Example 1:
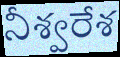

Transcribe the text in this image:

నీశ్వరేశ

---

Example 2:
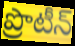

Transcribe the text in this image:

ప్రొటీన్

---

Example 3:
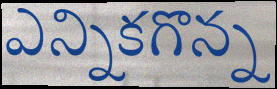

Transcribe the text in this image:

ఎన్నికగొన్న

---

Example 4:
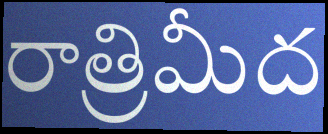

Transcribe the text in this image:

రాత్రిమీద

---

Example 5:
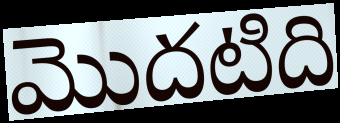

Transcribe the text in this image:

మొదటిది